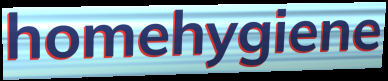
homehygiene